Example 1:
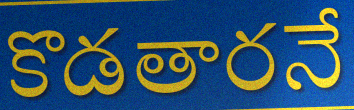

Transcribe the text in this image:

కొడతారనే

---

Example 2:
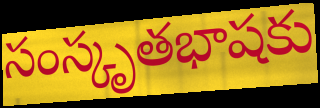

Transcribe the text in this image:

సంస్కృతభాషకు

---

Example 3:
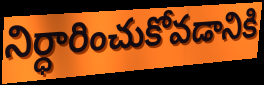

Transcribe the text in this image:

నిర్ధారించుకోవడానికి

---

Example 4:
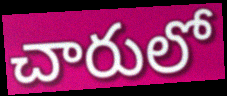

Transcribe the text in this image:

చారులో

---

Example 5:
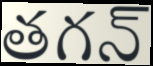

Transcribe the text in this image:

తగన్